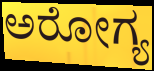
ಅರೋಗ್ಯ